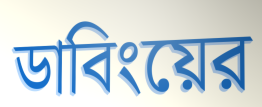
ডাবিংয়ের